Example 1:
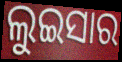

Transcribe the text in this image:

ଲୁଇସାର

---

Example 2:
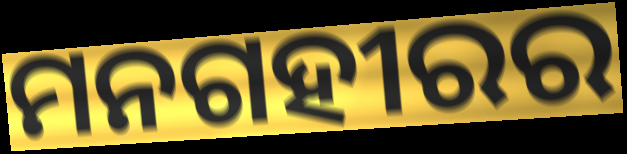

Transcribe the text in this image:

ମନଗହୀରର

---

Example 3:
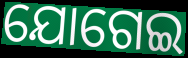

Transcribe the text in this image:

ଯୋଗେଇ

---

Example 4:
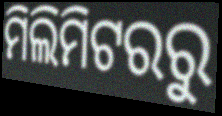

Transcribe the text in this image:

ମିଲିମିଟରରୁ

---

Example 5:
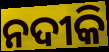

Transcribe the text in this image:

ନଦୀକି